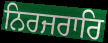
ਨਿਰਜਰਾਰਿ